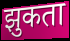
झुकता